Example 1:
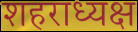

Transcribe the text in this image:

शहराध्यक्ष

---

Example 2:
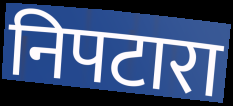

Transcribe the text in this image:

निपटारा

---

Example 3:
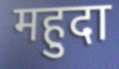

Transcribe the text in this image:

महुदा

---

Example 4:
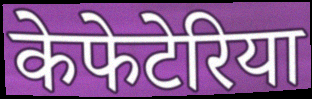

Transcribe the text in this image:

केफेटेरिया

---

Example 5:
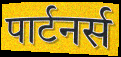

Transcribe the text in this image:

पार्टनर्स